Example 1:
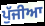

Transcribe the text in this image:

ਪੁੱਜੀਆ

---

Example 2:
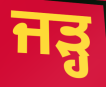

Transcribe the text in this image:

ਜੜ੍ਹ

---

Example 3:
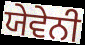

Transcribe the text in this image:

ਯੇਵੇਨੀ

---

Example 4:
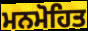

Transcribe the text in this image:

ਮਨਮੋਹਿਤ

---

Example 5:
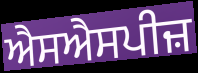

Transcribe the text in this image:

ਐਸਐਸਪੀਜ਼